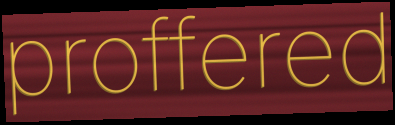
proffered